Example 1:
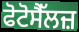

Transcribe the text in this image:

ਫੋਟੋਸੈੱਲਜ਼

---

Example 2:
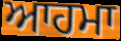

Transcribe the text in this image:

ਆਹਮਾ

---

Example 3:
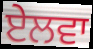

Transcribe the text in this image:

ਏਲਵਾ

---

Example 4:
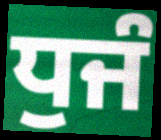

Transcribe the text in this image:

ਧੁਜੰ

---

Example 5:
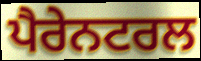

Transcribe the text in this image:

ਪੈਰੇਨਟਰਲ